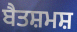
ਬੈਤਸ਼ਮਸ਼